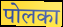
पोलका